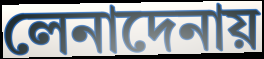
লেনাদেনায়